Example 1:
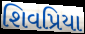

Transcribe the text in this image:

શિવપ્રિયા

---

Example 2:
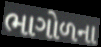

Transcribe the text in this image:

ભાગોળના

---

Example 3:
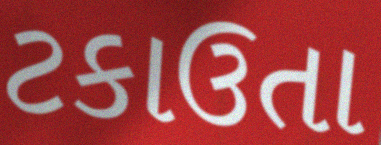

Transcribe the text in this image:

ટકાઉતા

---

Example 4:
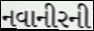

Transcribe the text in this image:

નવાનીરની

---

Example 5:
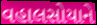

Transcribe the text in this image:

વહાલસોયાને